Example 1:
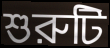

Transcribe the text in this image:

শুরুটি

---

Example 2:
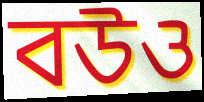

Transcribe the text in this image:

বউও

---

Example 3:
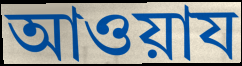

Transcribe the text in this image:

আওয়ায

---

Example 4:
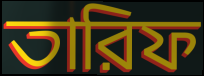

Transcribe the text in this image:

তারিফ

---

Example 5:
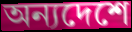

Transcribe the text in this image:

অন্যদেশে